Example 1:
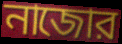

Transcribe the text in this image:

নাজোর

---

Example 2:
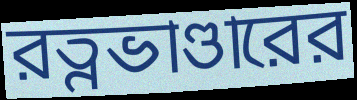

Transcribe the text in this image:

রত্নভাণ্ডারের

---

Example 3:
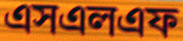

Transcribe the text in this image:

এসএলএফ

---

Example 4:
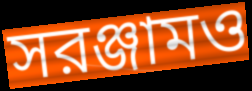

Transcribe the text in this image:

সরঞ্জামও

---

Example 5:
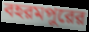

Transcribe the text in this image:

বহরমপুরের